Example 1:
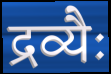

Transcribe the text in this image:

द्रव्यैः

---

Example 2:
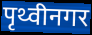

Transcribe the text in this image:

पृथ्वीनगर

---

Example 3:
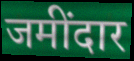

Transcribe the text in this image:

जमींदार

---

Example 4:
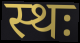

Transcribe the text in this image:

स्थः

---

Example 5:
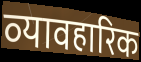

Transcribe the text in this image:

व्‍यावहारिक